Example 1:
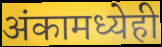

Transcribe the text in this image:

अंकामध्येही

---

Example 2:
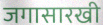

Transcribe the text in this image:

जगासारखी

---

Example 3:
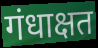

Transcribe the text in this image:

गंधाक्षत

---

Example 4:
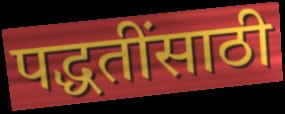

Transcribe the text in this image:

पद्धतींसाठी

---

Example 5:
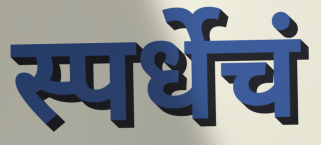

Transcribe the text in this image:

स्पर्धेचं